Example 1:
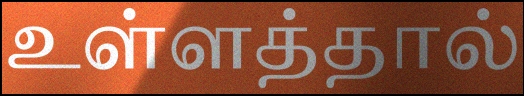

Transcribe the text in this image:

உள்ளத்தால்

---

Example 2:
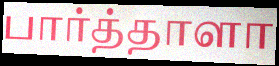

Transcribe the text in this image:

பார்த்தாளா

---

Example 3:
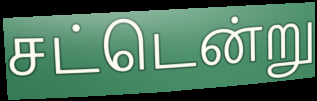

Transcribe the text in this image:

சட்டென்று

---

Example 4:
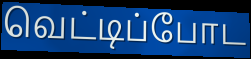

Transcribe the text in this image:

வெட்டிப்போட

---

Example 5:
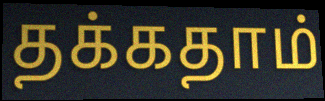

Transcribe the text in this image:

தக்கதாம்